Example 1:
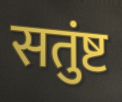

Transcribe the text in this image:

सतुंष्ट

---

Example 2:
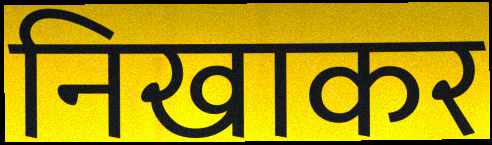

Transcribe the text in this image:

निखाकर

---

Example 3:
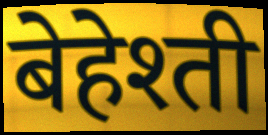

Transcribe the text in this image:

बेहेश्ती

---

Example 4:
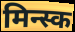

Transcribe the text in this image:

मिन्स्क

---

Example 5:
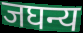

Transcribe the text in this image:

जघन्‍य